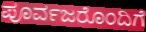
ಪೂರ್ವಜರೊಂದಿಗೆ